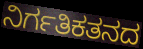
ನಿರ್ಗತಿಕತನದ